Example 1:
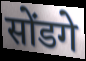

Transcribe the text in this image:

सोंडगे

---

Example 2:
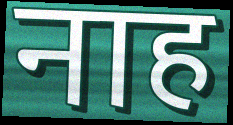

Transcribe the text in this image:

नाह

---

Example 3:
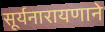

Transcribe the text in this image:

सूर्यनारायणाने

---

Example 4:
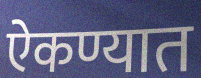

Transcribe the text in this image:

ऐकण्यात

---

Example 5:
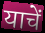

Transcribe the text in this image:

याचें